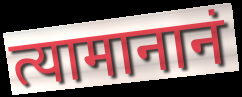
त्यामानानं